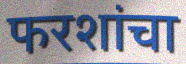
फरशांचा